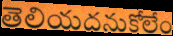
తెలియదనుకోలేం